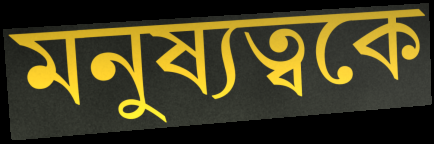
মনুষ্যত্বকে